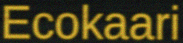
Ecokaari